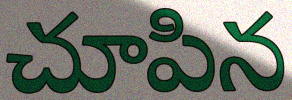
చూపిన